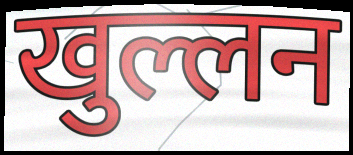
खुल्लन